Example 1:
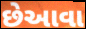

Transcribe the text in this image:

છેઆવા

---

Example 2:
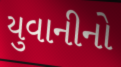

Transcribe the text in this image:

યુવાનીનો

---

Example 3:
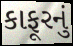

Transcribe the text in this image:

કાફૂરનું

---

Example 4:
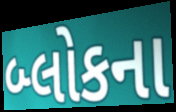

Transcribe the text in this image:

બ્લોકના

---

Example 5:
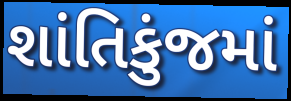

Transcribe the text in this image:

શાંતિકુંજમાં